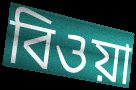
বিওয়া